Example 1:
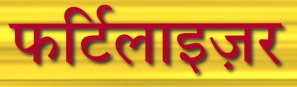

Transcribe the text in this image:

फर्टिलाइज़र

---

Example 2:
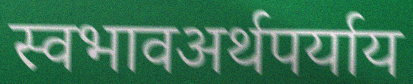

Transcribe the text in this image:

स्वभावअर्थपर्याय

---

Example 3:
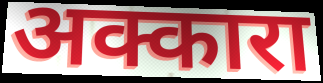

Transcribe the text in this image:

अक्कारा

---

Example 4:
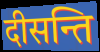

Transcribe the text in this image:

दीसन्ति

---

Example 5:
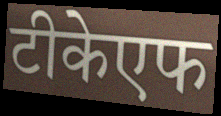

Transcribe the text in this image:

टीकेएफ